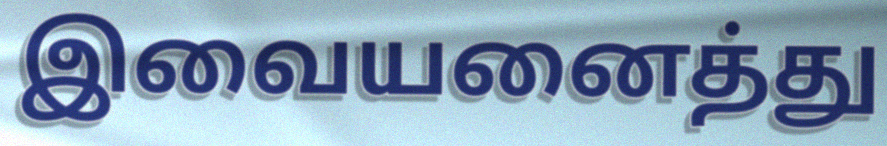
இவையனைத்து